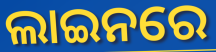
ଲାଇନରେ